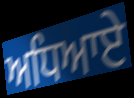
ਅਧਿਆਏ